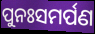
ପୁନଃସମର୍ପଣ